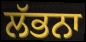
ਲੱਭਨਾ